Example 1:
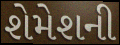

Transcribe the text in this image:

શેમેશની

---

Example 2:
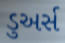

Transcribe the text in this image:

ડુઅર્સ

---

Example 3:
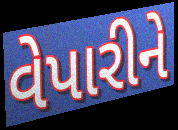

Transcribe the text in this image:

વેપારીને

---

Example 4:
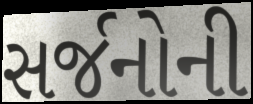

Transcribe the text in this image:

સર્જનોની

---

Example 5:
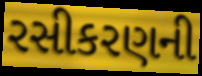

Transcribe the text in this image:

રસીકરણની